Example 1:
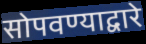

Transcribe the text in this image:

सोपवण्याद्वारे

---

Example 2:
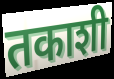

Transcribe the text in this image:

तकाशी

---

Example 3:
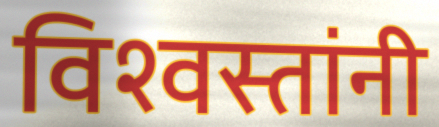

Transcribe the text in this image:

विश्वस्तांनी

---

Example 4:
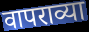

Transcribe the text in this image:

वापराव्या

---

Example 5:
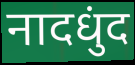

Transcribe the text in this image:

नादधुंद